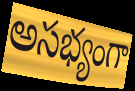
అసభ్యంగా